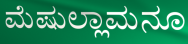
ಮೆಷುಲ್ಲಾಮನೂ